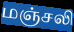
மஞ்சலி